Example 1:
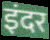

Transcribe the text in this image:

इंदर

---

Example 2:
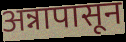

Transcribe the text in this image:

अन्नापासून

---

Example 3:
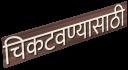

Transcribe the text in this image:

चिकटवण्यासाठी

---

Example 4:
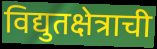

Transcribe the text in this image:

विद्युतक्षेत्राची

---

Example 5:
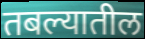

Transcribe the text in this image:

तबल्यातील